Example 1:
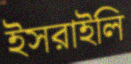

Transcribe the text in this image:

ইসরাইলি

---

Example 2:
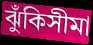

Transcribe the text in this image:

ঝুঁকিসীমা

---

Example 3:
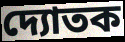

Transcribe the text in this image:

দ্যোতক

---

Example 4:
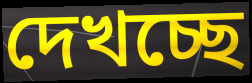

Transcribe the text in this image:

দেখচ্ছে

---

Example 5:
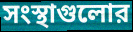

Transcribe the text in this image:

সংস্থাগুলোর